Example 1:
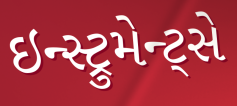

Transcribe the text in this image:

ઇન્સ્ટ્રુમેન્ટ્સે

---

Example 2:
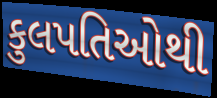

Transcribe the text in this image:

કુલપતિઓથી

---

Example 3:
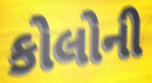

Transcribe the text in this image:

કોલોની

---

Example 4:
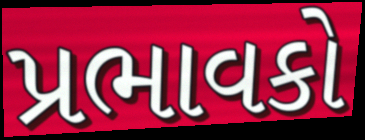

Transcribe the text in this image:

પ્રભાવકો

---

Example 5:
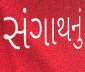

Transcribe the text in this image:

સંગાથનું